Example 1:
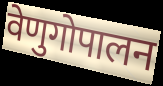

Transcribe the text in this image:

वेणुगोपालन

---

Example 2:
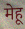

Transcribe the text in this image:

मेहू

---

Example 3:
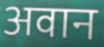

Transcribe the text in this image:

अवान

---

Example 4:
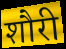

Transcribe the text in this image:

शौरी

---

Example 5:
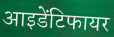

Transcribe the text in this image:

आइडेंटिफायर